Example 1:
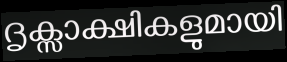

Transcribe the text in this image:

ദൃക്സാക്ഷികളുമായി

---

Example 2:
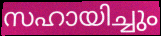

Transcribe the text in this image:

സഹായിച്ചും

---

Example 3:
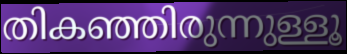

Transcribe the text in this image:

തികഞ്ഞിരുന്നുള്ളൂ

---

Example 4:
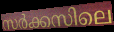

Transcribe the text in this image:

സർക്കസിലെ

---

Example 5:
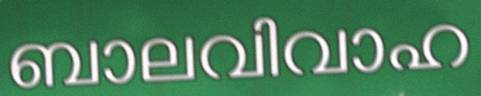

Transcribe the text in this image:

ബാലവിവാഹ